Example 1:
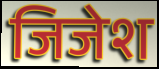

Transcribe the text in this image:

जिजेश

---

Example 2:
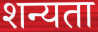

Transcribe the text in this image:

शन्यता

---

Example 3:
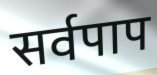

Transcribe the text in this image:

सर्वपाप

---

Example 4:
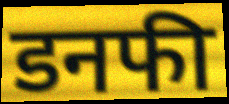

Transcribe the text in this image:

डनफी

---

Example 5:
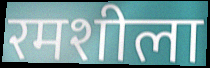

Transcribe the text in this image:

रमशीला